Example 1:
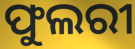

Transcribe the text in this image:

ଫୁଲରୀ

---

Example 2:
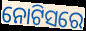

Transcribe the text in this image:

ନୋଟିସରେ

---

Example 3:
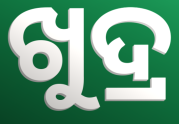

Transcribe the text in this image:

ଖୁଦ୍ର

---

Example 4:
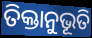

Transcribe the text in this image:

ତିକ୍ତାନୁଭୂତି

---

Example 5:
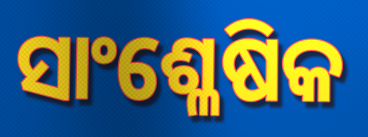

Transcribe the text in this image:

ସାଂଶ୍ଳେଷିକ